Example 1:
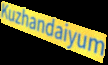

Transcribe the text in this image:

Kuzhandaiyum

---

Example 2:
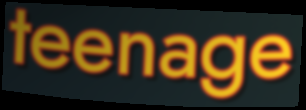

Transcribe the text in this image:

teenage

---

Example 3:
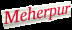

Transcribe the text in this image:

Meherpur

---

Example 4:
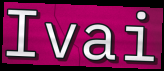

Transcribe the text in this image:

Ivai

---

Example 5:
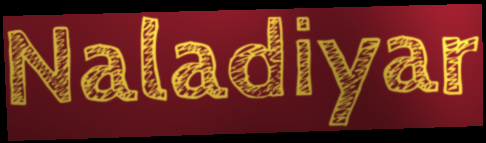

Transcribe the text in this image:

Naladiyar